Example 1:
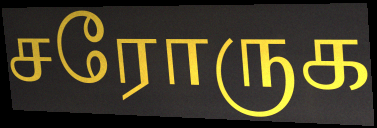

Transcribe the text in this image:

சரோருக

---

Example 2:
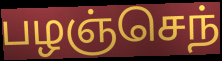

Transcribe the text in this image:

பழஞ்செந்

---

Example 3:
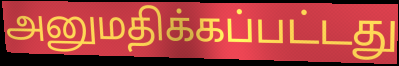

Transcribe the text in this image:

அனுமதிக்கப்பட்டது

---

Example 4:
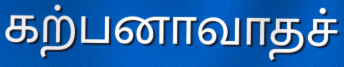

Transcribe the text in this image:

கற்பனாவாதச்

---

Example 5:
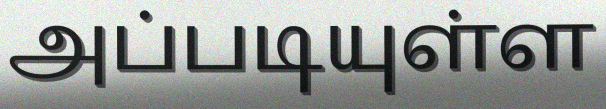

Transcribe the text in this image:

அப்படியுள்ள